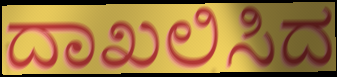
ದಾಖಲಿಸಿದ